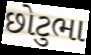
છોટુભા